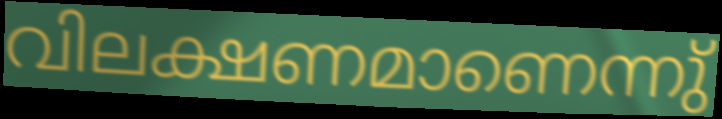
വിലക്ഷണമാണെന്നു്